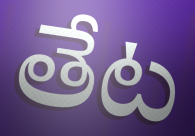
తేట